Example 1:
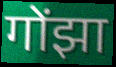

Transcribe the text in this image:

गोंझा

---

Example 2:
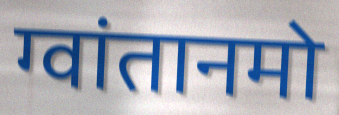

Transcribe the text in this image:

ग्वांतानमो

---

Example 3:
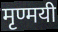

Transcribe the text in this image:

मृण्मयी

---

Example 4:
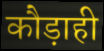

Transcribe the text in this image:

कौड़ाही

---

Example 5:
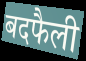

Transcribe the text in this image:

बदफैली